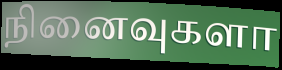
நினைவுகளா